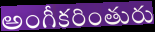
అంగీకరింతురు